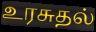
உரசுதல்